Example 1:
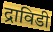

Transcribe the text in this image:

द्राविडी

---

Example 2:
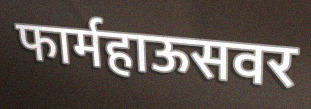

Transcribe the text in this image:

फार्महाऊसवर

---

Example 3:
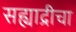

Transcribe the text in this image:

सह्याद्रीचा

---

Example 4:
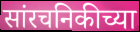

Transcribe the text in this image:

सांरचनिकीच्या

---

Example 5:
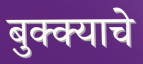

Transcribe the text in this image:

बुक्क्याचे